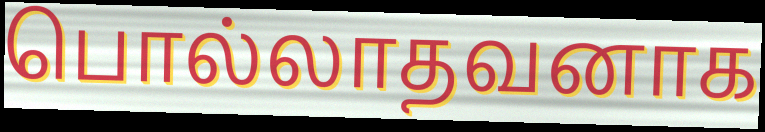
பொல்லாதவனாக